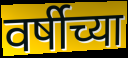
वर्षीच्या